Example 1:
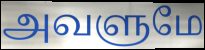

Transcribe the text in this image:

அவளுமே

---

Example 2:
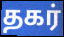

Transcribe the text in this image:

தகர்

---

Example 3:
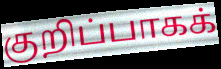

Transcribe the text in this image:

குறிப்பாகக்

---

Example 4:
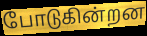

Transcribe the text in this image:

போடுகின்றன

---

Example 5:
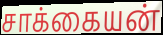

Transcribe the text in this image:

சாக்கையன்